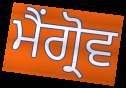
ਮੈਂਗ੍ਰੋਵ